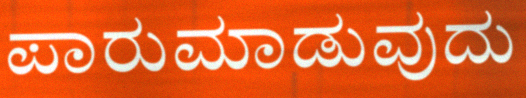
ಪಾರುಮಾಡುವುದು